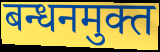
बन्धनमुक्त